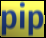
pip